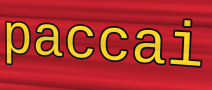
paccai